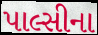
પાલ્સીના